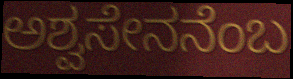
ಅಶ್ವಸೇನನೆಂಬ